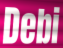
Debi